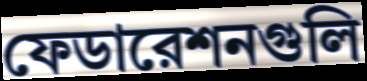
ফেডারেশনগুলি